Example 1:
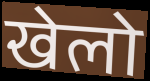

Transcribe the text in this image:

खेलो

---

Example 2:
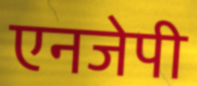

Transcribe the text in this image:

एनजेपी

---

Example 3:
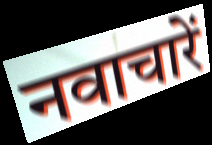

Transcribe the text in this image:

नवाचारें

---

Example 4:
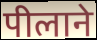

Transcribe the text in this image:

पीलाने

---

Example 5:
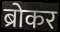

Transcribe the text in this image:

ब्रोकर